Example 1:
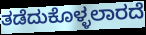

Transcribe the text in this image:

ತಡೆದುಕೊಳ್ಳಲಾರದೆ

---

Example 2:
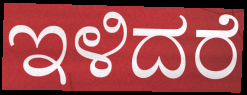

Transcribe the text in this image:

ಇಳಿದರೆ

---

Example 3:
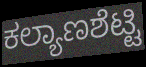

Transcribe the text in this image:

ಕಲ್ಯಾಣಶೆಟ್ಟಿ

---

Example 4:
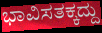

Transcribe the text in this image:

ಭಾವಿಸತಕ್ಕದ್ದು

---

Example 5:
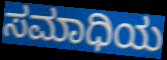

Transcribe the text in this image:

ಸಮಾಧಿಯ